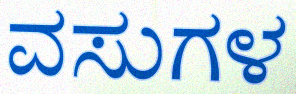
ವಸುಗಳ